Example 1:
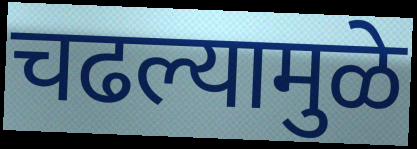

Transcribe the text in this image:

चढल्यामुळे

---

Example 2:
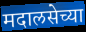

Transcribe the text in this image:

मदालसेच्या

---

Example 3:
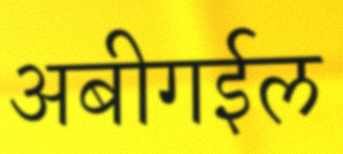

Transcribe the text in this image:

अबीगईल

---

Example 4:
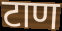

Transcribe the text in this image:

टाण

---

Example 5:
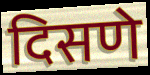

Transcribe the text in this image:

दिसणे